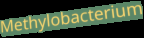
Methylobacterium